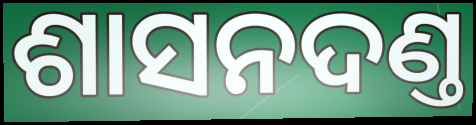
ଶାସନଦଣ୍ତ